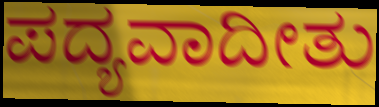
ಪದ್ಯವಾದೀತು